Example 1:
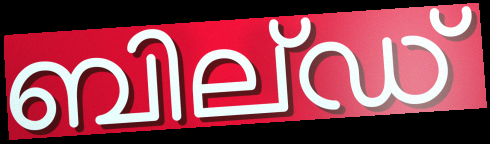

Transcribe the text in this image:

ബില്ഡ്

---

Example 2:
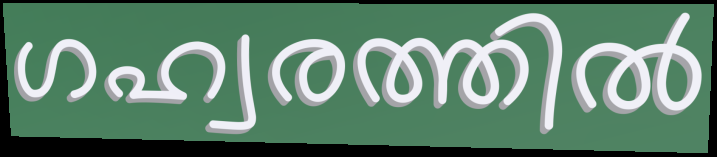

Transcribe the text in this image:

ഗഹ്വരത്തിൽ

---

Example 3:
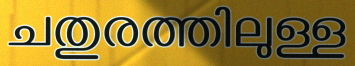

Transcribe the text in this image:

ചതുരത്തിലുള്ള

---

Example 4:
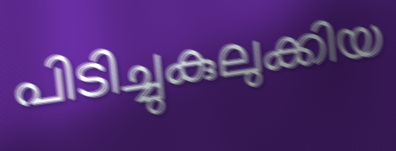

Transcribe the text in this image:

പിടിച്ചുകുലുക്കിയ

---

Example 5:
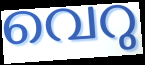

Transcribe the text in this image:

വെറു